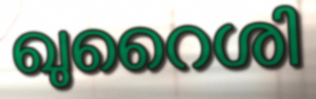
ഖുറൈശി